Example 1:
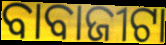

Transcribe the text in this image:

ବାବାଜୀଟା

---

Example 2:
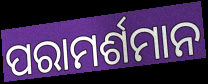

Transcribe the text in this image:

ପରାମର୍ଶମାନ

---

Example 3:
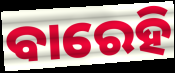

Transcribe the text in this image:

ବାରେହି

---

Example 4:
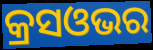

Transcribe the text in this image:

କ୍ରସଓଭର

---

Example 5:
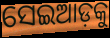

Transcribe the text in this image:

ସେଇଆଡ଼କୁ